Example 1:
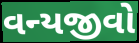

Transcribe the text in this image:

વન્યજીવો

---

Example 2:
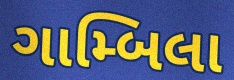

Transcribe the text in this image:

ગામ્બિલા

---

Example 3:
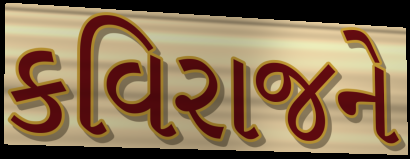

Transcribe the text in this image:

કવિરાજને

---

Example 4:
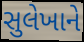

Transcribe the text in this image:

સુલેખાને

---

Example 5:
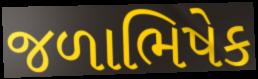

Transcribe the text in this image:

જળાભિષેક